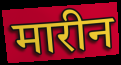
मारीन